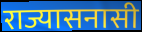
राज्यासनासी